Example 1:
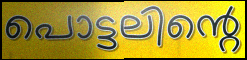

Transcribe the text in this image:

പൊട്ടലിന്റെ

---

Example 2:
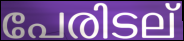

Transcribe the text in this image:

പേരിടല്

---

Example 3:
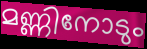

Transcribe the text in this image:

മണ്ണിനോടും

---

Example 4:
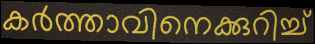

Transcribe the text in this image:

കർത്താവിനെക്കുറിച്ച്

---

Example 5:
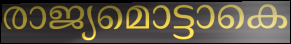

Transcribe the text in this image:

രാജ്യമൊട്ടാകെ